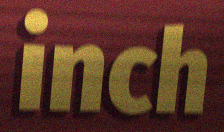
inch